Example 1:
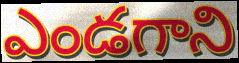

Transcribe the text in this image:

ఎండగాని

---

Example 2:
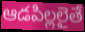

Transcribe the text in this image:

ఆడపిల్లలైతే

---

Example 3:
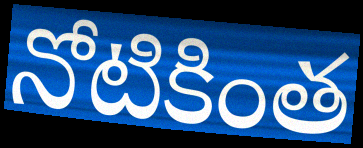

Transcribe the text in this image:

నోటికింత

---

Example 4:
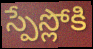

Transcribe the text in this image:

స్పేస్లోకి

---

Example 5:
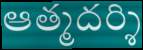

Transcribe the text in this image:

ఆత్మదర్శి